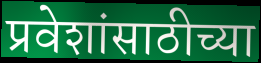
प्रवेशांसाठीच्या